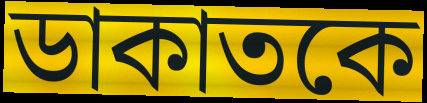
ডাকাতকে